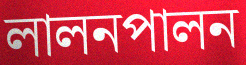
লালনপালন